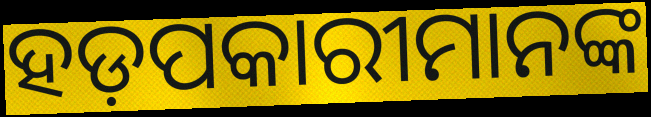
ହଡ଼ପକାରୀମାନଙ୍କ